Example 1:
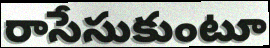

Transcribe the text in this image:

రాసేసుకుంటూ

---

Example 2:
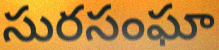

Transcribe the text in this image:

సురసంఘా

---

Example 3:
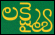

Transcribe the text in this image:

లక్ష్మ్యై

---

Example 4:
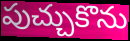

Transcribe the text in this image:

పుచ్చుకొను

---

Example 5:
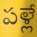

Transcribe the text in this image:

పళ్లే